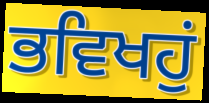
ਭਵਿਖਹੁਂ